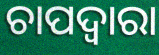
ଚାପଦ୍ବାରା